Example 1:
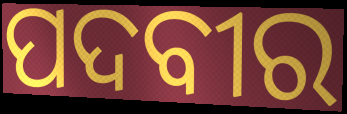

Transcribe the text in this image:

ପଦବୀର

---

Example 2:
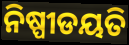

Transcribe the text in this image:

ନିଷ୍ପୀଡୟତି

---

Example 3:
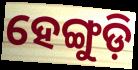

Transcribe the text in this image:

ହେଙ୍ଗୁଡ଼ି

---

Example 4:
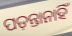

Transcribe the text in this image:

ପଡ଼ନ୍ତାନାହିଁ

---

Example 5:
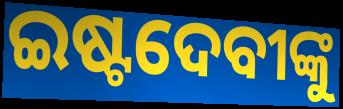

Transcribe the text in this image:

ଇଷ୍ଟଦେବୀଙ୍କୁ